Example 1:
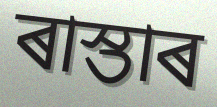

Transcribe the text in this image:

ৰাস্তাৰ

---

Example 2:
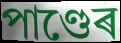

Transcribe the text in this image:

পাণ্ডেৰ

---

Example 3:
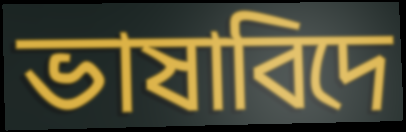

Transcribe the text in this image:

ভাষাবিদে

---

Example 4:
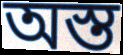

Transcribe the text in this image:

অস্ত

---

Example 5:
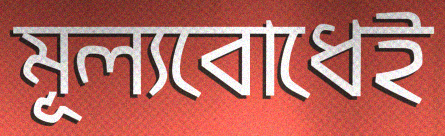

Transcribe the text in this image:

মূল্যবোধেই